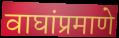
वाघांप्रमाणे